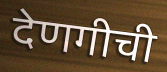
देणगीची